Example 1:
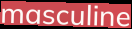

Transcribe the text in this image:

masculine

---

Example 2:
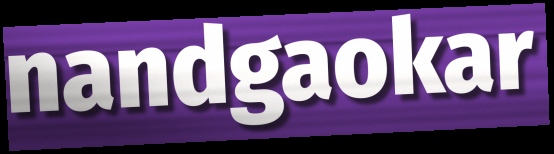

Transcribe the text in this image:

nandgaokar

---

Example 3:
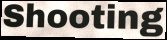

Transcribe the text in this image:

Shooting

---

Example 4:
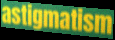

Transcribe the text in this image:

astigmatism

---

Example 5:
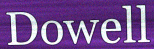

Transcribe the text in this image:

Dowell